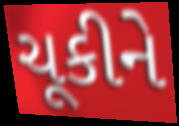
ચૂકીને